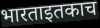
भारताइतकाच